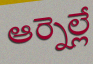
ఆర్నెల్లే